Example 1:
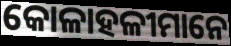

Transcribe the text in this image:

କୋଳାହଳୀମାନେ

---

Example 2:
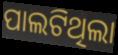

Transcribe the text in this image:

ପାଲଟିଥିଲା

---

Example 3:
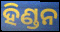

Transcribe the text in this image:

ହିଣ୍ଡନ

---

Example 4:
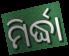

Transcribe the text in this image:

ମିର୍ଦ୍ଧା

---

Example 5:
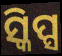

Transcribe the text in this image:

ସ୍କିପ୍ସ